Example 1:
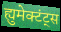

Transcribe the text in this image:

ह्युमेक्टंट्स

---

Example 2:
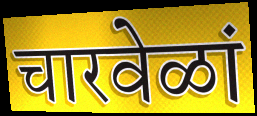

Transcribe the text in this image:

चारवेळां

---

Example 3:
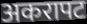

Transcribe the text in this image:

अकरापट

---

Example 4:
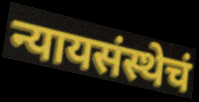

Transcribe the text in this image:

न्यायसंस्थेचं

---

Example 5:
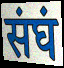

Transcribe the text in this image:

संघं